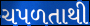
ચપળતાથી